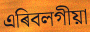
এৰিবলগীয়া